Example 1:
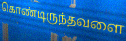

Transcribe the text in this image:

கொண்டிருந்தவளை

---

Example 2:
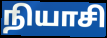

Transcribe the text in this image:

நியாசி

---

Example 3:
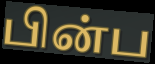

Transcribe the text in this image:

பின்ப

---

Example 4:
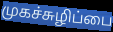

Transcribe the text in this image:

முகச்சுழிப்பை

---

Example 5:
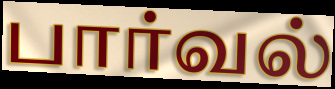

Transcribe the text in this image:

பார்வல்